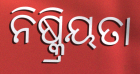
ନିଷ୍କ୍ରିୟତା